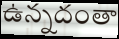
ఉన్నదంతా